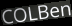
COLBen